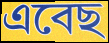
এবেছ